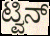
ಟ್ವಿನ್